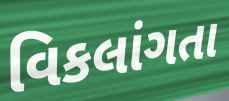
વિકલાંગતા